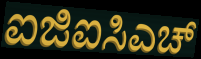
ಐಜಿಐಸಿಎಚ್